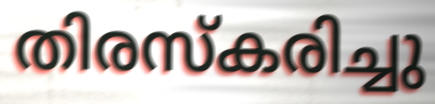
തിരസ്കരിച്ചു